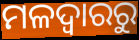
ମଳଦ୍ୱାରରୁ